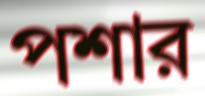
পশার